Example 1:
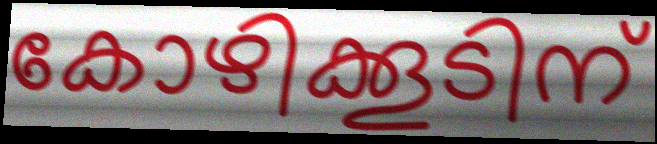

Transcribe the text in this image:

കോഴിക്കൂടിന്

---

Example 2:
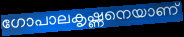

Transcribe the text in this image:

ഗോപാലകൃഷ്ണനെയാണ്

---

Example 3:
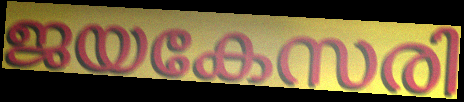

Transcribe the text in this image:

ജയകേസരി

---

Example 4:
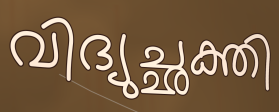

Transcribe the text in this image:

വിദ്യുച്ഛക്തി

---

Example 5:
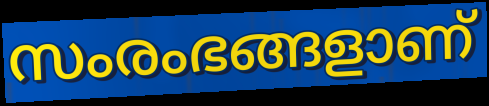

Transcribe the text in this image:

സംരംഭങ്ങളാണ്